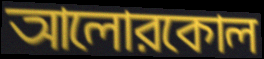
আলোরকোল